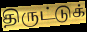
திருட்டுக்